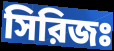
সিরিজঃ